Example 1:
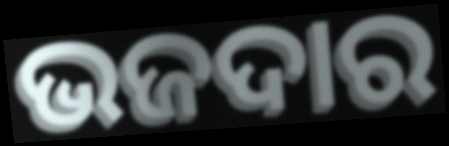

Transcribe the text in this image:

ଭଜଦାର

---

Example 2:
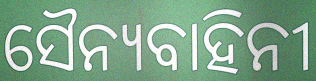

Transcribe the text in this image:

ସୈନ୍ଯବାହିନୀ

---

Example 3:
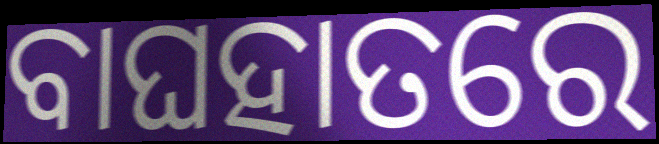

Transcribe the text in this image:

ବାଘହାତରେ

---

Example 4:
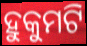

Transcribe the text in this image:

ହୁକୁମଟି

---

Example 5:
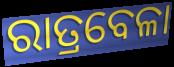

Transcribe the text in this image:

ରାତ୍ରବେଳା